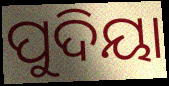
ପୁଦିୟା